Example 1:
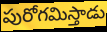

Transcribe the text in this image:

పురోగమిస్తాడు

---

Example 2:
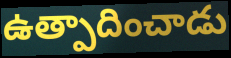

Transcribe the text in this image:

ఉత్పాదించాడు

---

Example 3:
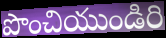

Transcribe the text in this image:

పొంచియుండిరి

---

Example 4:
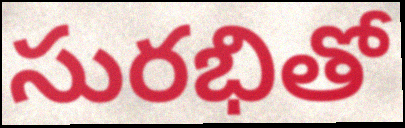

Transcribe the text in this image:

సురభితో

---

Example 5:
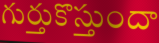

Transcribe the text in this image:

గుర్తుకొస్తుందా